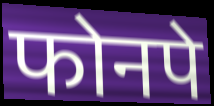
फोनपे